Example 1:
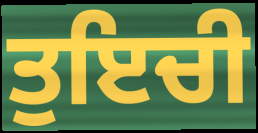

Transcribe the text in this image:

ਤੁਇਚੀ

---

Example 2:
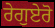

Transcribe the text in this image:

ਰੇਗੁਏਰੋ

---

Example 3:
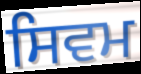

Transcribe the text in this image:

ਸਿਵਮ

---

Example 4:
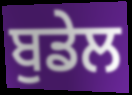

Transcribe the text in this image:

ਬੁਡੇਲ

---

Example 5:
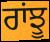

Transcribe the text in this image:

ਰਾਂਝੂ